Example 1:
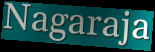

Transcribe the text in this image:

Nagaraja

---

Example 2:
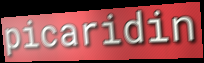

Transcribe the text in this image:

picaridin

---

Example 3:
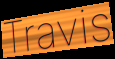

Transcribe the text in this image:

Travis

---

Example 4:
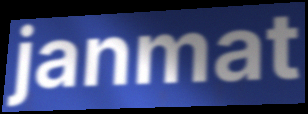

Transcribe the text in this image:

janmat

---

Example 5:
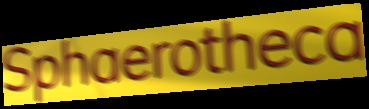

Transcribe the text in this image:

Sphaerotheca